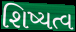
શિષ્યત્વ